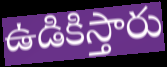
ఉడికిస్తారు